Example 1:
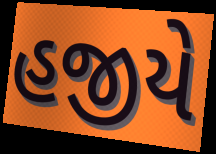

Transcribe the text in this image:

હજીયે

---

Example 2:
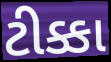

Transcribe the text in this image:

ટીક્કા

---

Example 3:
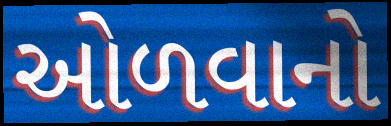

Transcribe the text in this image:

ઓળવાનો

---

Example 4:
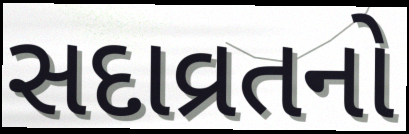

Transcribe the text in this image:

સદાવ્રતનો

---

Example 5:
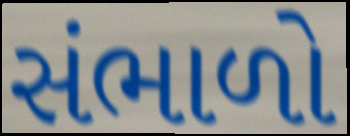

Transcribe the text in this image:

સંભાળો